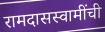
रामदासस्वामींची